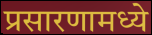
प्रसारणामध्ये